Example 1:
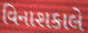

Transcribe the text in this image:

વિનાશકાલે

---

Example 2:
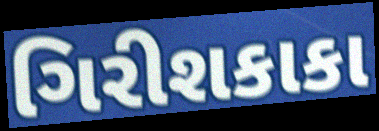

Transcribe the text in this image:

ગિરીશકાકા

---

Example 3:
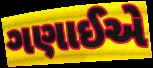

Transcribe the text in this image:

ગણાઈએ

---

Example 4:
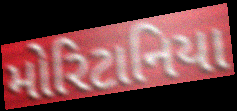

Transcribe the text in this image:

મોરિટાનિયા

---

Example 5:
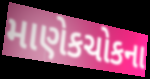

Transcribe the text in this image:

માણેકચોકના